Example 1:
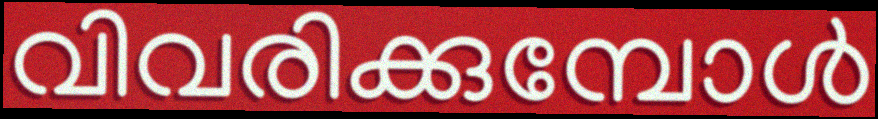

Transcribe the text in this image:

വിവരിക്കുമ്പോൾ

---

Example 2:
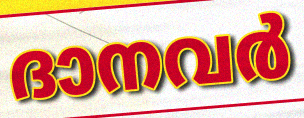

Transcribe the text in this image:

ദാനവർ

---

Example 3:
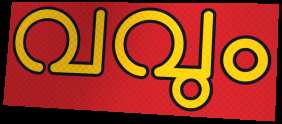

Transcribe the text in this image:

വവും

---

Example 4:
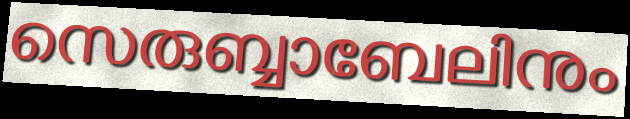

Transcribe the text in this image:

സെരുബ്ബാബേലിനും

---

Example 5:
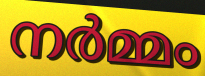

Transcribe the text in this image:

നർമ്മം